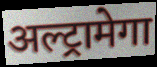
अल्ट्रामेगा